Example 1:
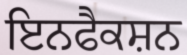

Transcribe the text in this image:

ਇਨਫੈਕਸ਼ਨ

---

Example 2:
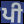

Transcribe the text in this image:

ਪੀ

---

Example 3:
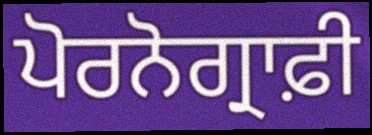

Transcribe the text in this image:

ਪੋਰਨੋਗ੍ਰਾਫ਼ੀ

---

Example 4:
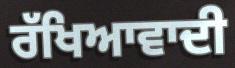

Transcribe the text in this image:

ਰੱਖਿਆਵਾਦੀ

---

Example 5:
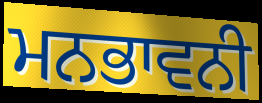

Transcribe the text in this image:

ਮਨਭਾਵਨੀ